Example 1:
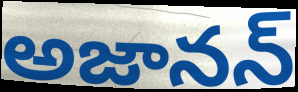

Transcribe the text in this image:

అజానన్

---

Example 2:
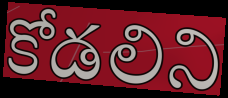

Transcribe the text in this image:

కోడలిని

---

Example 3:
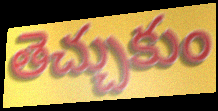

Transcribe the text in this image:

తెచ్చుకుం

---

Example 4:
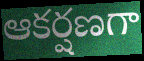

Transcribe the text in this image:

ఆకర్షణగా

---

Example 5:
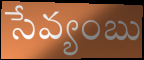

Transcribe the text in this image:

సేవ్యంబు